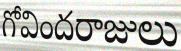
గోవిందరాజులు